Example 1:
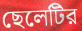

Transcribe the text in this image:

ছেলেটির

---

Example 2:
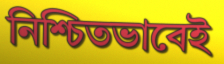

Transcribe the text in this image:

নিশ্চিতভাবেই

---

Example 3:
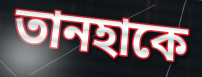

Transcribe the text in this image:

তানহাকে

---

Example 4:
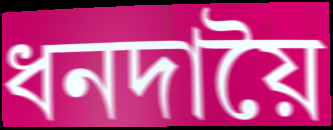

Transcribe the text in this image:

ধনদায়ৈ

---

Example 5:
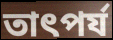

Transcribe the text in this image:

তাৎপর্য